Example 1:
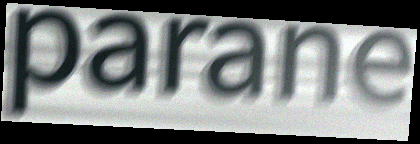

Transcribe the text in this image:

parane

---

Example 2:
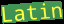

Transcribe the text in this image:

Latin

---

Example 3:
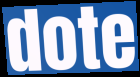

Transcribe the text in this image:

dote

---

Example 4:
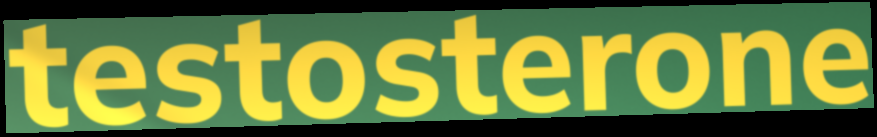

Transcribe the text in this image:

testosterone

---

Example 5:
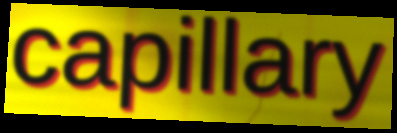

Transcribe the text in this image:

capillary